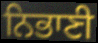
ਨਿਭਾਣੀ